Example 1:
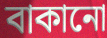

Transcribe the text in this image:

বাকানো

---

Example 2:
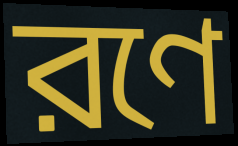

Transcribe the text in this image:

রণে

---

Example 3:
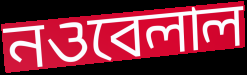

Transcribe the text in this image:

নওবেলাল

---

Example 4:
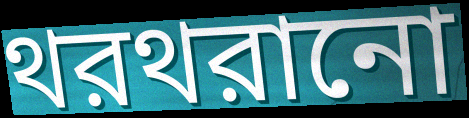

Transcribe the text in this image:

থরথরানো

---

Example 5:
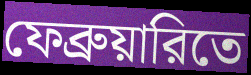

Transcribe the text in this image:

ফেব্রুয়ারিতে